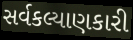
સર્વકલ્યાણકારી